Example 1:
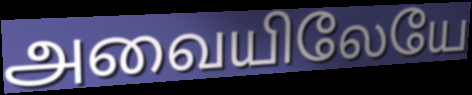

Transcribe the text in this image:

அவையிலேயே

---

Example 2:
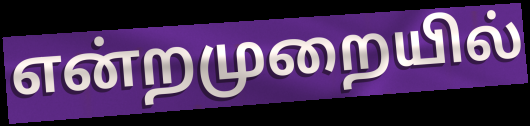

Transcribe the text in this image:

என்றமுறையில்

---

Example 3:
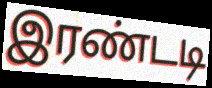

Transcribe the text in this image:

இரண்டடி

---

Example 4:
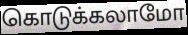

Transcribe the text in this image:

கொடுக்கலாமோ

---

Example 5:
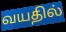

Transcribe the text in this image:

வயதில்